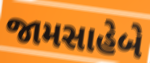
જામસાહેબે